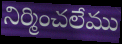
నిర్మించలేము